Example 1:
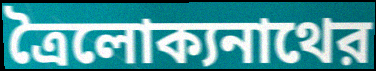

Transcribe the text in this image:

ত্রৈলোক্যনাথের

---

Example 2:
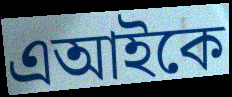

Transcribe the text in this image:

এআইকে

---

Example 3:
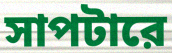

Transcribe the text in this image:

সাপটারে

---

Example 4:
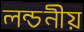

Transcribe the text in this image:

লন্ডনীয়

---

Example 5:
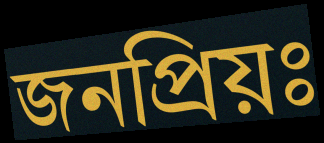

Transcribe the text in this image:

জনপ্রিয়ঃ